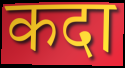
कदा